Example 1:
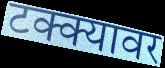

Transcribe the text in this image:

टक्क्यावर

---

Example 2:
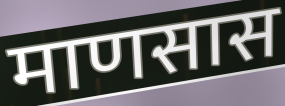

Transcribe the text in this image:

माणसास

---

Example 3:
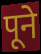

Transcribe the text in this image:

पूने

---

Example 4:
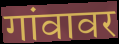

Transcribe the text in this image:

गांवावर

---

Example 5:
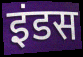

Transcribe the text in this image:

इंडस